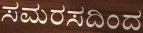
ಸಮರಸದಿಂದ